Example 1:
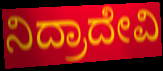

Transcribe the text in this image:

ನಿದ್ರಾದೇವಿ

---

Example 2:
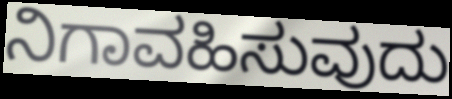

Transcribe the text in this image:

ನಿಗಾವಹಿಸುವುದು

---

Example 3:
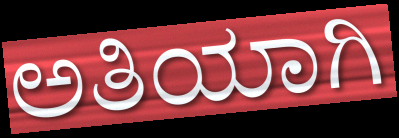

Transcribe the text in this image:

ಅತಿಯಾಗಿ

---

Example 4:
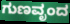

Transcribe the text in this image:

ಗುಣವೃಂದ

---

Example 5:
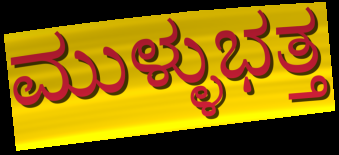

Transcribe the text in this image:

ಮುಳ್ಳುಭತ್ತ